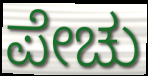
ಪೇಚು